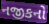
નજીકનો